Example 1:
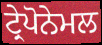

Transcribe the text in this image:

ਟ੍ਰੇਪੋਨੇਮਲ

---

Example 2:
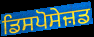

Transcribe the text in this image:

ਡਿਸਪੋਸੇਜ਼ਡ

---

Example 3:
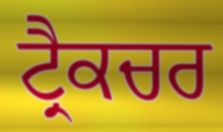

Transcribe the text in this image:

ਟ੍ਰੈਕਚਰ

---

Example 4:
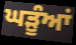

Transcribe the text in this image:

ਘੜੂੰਆਂ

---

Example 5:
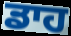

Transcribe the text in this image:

ਡਾਹ